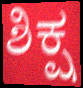
ಶಿಕ್ಷ